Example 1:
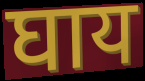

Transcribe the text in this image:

घाय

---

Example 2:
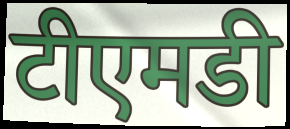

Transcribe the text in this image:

टीएमडी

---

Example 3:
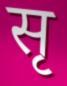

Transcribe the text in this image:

सृ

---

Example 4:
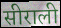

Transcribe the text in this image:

सीराली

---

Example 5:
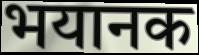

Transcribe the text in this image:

भयानक